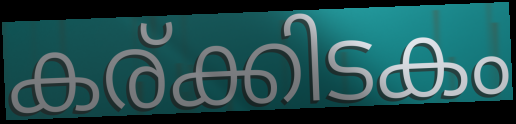
കര്ക്കിടകം